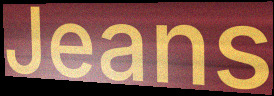
Jeans